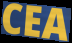
CEA